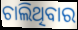
ଚାଲିଥିବାର